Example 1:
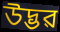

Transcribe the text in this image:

উদ্ভৱ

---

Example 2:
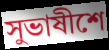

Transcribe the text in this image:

সুভাষীশে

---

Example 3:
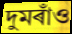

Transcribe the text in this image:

দুমৰাঁও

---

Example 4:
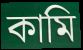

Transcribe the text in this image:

কামি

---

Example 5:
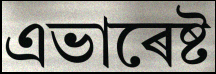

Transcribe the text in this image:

এভাৰেষ্ট